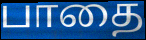
பாதை